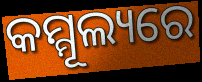
କମ୍ମୂଲ୍ୟରେ